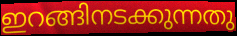
ഇറങ്ങിനടക്കുന്നതു